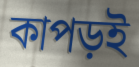
কাপড়ই